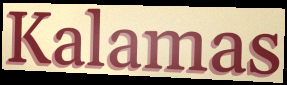
Kalamas